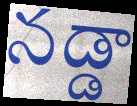
నడ్డా